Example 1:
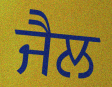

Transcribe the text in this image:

ਜੈਲ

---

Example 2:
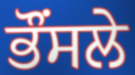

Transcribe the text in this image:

ਭੌਂਸਲੇ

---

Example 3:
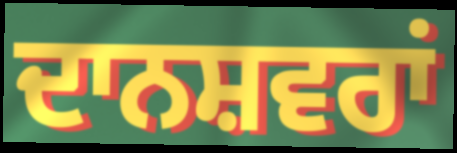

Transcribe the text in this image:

ਦਾਨਸ਼ਵਰਾਂ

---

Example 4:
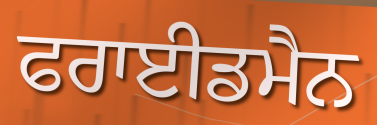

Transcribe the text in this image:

ਫਰਾਈਡਮੈਨ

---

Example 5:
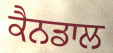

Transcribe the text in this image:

ਕੈਨਡਾਲ